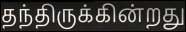
தந்திருக்கின்றது